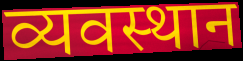
व्यवस्थान